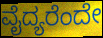
ವೈದ್ಯರೆಂದೇ